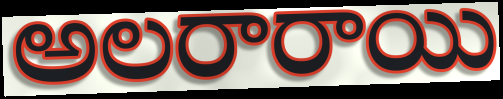
అలరారాయి